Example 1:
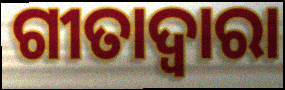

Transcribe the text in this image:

ଗୀତାଦ୍ଵାରା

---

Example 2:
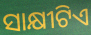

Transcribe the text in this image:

ସାକ୍ଷୀଟିଏ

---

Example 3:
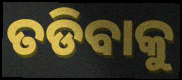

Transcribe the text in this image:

ତଡିବାକୁ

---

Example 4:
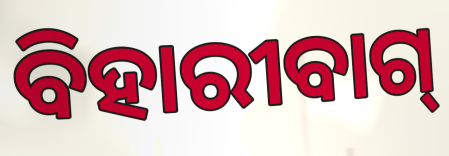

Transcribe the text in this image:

ବିହାରୀବାଗ୍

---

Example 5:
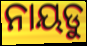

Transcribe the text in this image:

ନାୟଡୁ